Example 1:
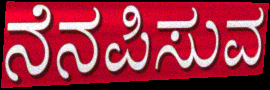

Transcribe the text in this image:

ನೆನಪಿಸುವ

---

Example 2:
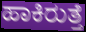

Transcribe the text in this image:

ಹಾಕಿರುತ್ತೆ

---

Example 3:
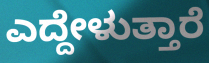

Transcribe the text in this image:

ಎದ್ದೇಳುತ್ತಾರೆ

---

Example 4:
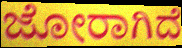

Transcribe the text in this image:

ಜೋರಾಗಿದೆ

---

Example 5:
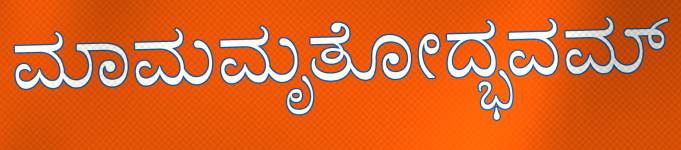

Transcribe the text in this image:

ಮಾಮಮೃತೋದ್ಭವಮ್